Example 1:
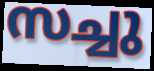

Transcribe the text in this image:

സച്ചു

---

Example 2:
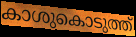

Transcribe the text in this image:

കാശുകൊടുത്ത്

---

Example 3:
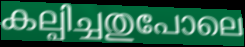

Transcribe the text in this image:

കല്പിച്ചതുപോലെ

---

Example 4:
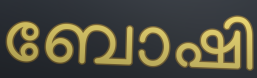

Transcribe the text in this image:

ബോഷി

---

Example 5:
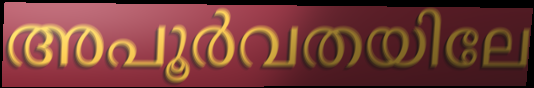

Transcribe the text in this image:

അപൂർവതയിലേ